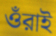
ওঁরাই